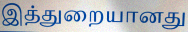
இத்துறையானது